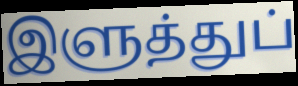
இளுத்துப்